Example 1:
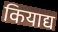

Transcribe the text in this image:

कियाद्य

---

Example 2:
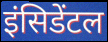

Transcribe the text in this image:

इंसिडेंटल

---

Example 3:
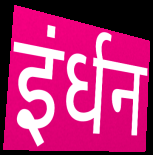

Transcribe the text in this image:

इंर्धन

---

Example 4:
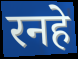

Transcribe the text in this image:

रनहे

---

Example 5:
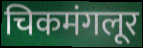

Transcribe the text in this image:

चिकमंगलूर